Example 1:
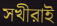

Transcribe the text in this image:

সখীরাই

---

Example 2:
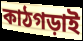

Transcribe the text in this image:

কাঠগড়াই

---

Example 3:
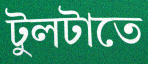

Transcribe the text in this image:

টুলটাতে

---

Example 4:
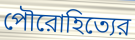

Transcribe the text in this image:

পৌরোহিত্যের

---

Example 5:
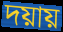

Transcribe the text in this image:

দয়ায়